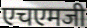
एचएमजी